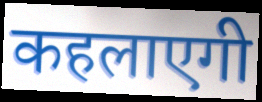
कहलाएगी